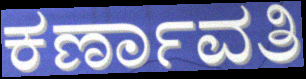
ಕರ್ಣಾವತಿ